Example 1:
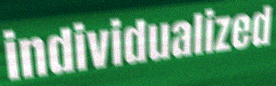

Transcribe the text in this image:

individualized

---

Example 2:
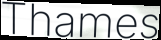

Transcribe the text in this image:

Thames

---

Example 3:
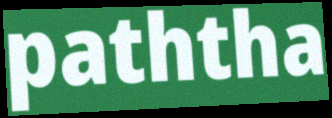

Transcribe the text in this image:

paththa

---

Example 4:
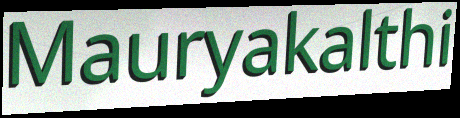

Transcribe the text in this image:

Mauryakalthi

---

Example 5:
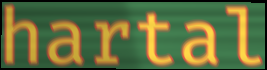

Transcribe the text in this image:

hartal